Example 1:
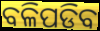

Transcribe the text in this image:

ବଳିପଡିବ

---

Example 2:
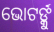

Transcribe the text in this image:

ଭୋଟର୍ଙ୍କୁ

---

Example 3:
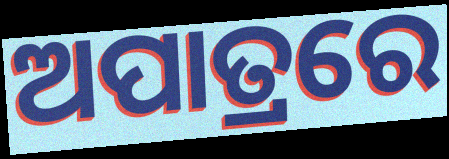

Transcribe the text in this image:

ଅପାତ୍ରରେ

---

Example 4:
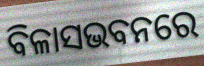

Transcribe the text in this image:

ବିଳାସଭବନରେ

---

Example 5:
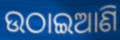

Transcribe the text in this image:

ଉଠାଇଆଣି